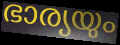
ഭാര്യയും